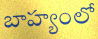
బాహ్యంలో